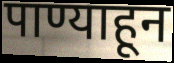
पाण्याहून